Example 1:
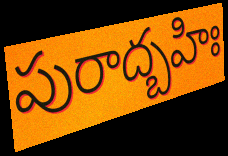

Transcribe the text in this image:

పురాద్బహిః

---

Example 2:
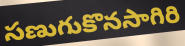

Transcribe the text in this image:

సణుగుకొనసాగిరి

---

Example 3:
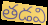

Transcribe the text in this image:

తడవి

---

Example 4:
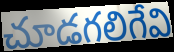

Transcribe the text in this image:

చూడగలిగేవి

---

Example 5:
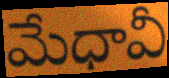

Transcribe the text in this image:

మేధావీ